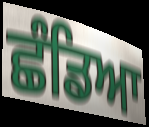
ਛੰਡਿਆ